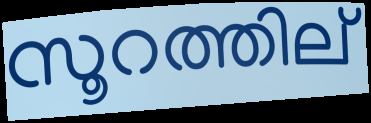
സൂറത്തില്